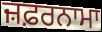
ਜ਼ਫ਼ਰਨਾਮਾ